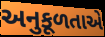
અનુકૂળતાએ